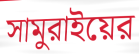
সামুরাইয়ের